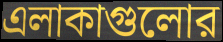
এলাকাগুলোর